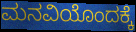
ಮನವಿಯೊಂದಕ್ಕೆ